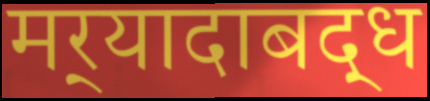
मर्यादाबद्ध